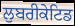
ਲੁਬਰੀਕੇਟਿਡ